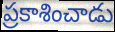
ప్రకాశించాడు